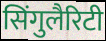
सिंगुलैरिटी